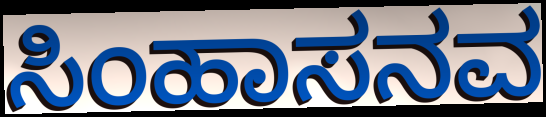
ಸಿಂಹಾಸನವ